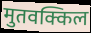
मुतवक्किल